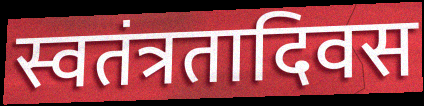
स्वतंत्रतादिवस